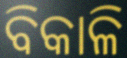
ବିକାଳି